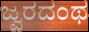
ಜ್ವರದಂಥ